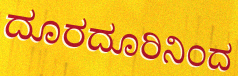
ದೂರದೂರಿನಿಂದ